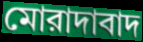
মোরাদাবাদ